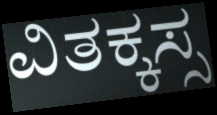
ವಿತಕ್ಕಸ್ಸ